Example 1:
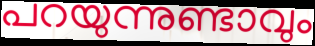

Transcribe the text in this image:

പറയുന്നുണ്ടാവും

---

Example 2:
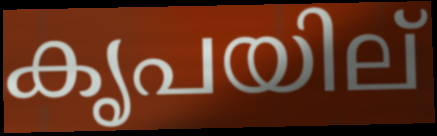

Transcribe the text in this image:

കൃപയില്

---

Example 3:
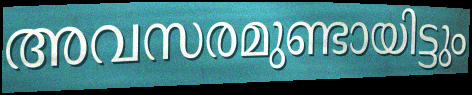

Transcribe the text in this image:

അവസരമുണ്ടായിട്ടും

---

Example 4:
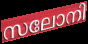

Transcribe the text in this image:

സലോനി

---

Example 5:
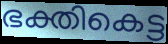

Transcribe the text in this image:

ഭക്തികെട്ട